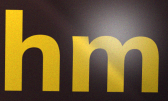
hm